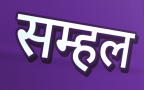
सम्हल